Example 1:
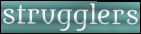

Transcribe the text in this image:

strugglers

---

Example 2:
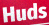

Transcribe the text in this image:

Huds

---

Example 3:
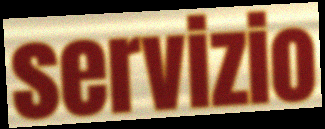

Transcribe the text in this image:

servizio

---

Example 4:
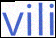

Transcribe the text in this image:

vili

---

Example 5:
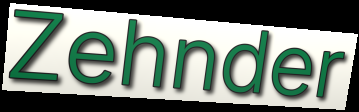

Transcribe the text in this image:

Zehnder